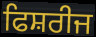
ਫਿਸ਼ਰੀਜ